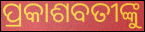
ପ୍ରକାଶବତୀଙ୍କୁ